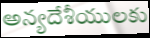
అన్యదేశీయులకు